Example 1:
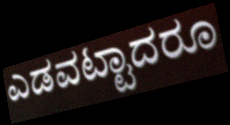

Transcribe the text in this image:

ಎಡವಟ್ಟಾದರೂ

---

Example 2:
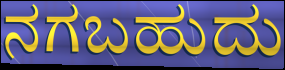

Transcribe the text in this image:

ನಗಬಹುದು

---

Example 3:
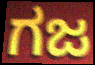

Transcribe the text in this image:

ಗಜ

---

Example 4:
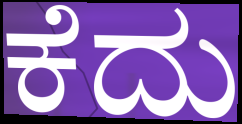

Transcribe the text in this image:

ಕೆದು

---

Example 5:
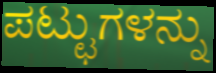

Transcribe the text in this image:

ಪಟ್ಟುಗಳನ್ನು